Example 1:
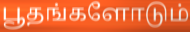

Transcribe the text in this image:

பூதங்களோடும்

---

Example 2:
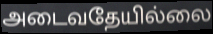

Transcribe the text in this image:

அடைவதேயில்லை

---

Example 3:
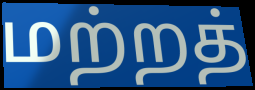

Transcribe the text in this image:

மற்றத்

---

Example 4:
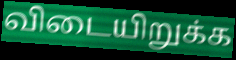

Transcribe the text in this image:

விடையிறுக்க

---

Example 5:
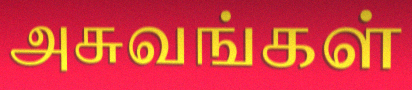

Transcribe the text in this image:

அசுவங்கள்